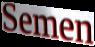
Semen